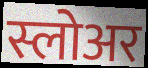
स्लोअर